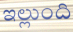
ఇల్లుంది